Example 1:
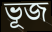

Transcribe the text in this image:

ভূজ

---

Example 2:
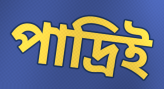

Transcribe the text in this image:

পাদ্রিই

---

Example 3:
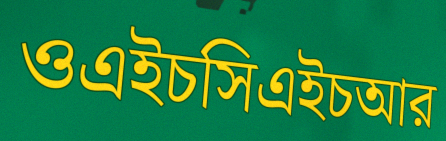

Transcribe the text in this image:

ওএইচসিএইচআর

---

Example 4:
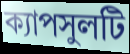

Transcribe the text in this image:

ক্যাপসুলটি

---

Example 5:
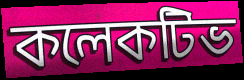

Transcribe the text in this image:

কলেকটিভ